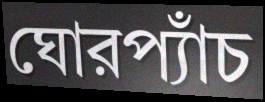
ঘোরপ্যাঁচ